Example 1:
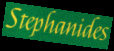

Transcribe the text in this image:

Stephanides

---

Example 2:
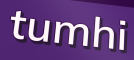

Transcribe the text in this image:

tumhi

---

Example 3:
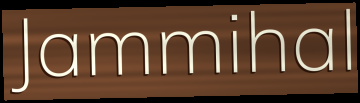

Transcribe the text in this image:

Jammihal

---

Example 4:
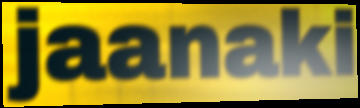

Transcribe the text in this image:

jaanaki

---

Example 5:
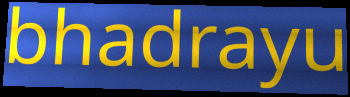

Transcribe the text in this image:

bhadrayu